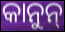
କାନୁନ୍